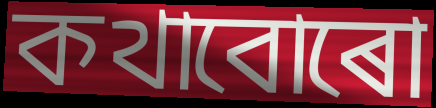
কথাবোৰো